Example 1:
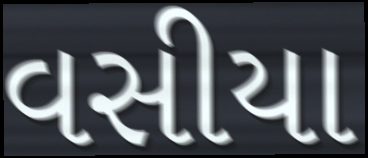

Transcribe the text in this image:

વસીયા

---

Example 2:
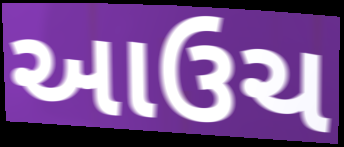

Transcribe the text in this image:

આઉચ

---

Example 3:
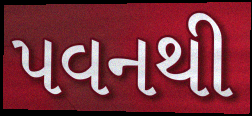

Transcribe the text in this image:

પવનથી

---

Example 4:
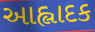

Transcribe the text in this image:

આહ્લાદક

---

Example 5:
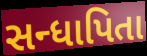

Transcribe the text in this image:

સન્ધાપિતા